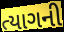
ત્યાગની